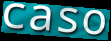
caso